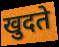
खुदते